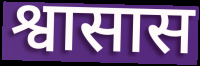
श्वासास